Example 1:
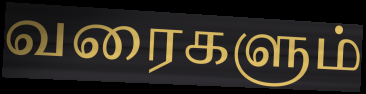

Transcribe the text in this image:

வரைகளும்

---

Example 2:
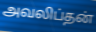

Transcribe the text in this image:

அவலிப்தன்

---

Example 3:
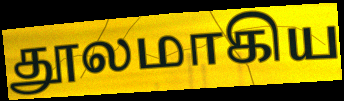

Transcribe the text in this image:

தூலமாகிய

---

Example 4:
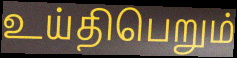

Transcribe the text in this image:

உய்திபெறும்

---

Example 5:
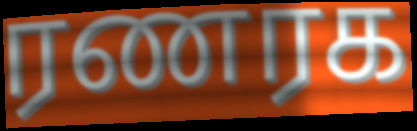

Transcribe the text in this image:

ரணரக